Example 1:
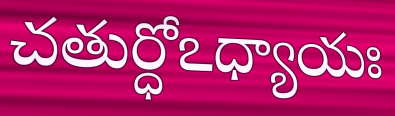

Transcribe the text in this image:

చతుర్ధోఽధ్యాయః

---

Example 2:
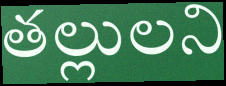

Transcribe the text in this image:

తల్లులని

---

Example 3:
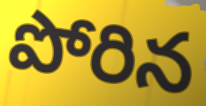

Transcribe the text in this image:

పోరిన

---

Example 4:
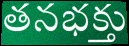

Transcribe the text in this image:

తనభక్తు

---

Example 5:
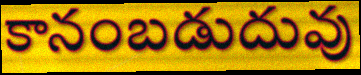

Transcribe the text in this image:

కానంబడుదువు